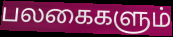
பலகைகளும்